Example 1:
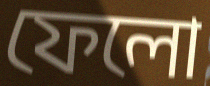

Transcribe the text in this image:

ফেলো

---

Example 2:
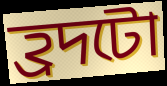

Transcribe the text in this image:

হ্ৰদটো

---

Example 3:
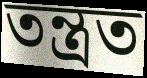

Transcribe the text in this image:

তন্ত্ৰত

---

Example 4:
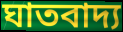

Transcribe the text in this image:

ঘাতবাদ্য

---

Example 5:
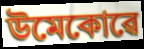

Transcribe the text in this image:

উমেকোৱে